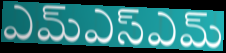
ఎమ్ఎస్ఎమ్